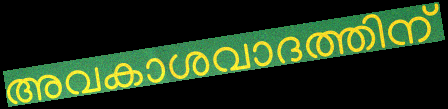
അവകാശവാദത്തിന്